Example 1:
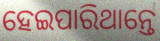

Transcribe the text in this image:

ହେଇପାରିଥାନ୍ତେ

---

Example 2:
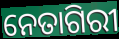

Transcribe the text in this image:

ନେତାଗିରୀ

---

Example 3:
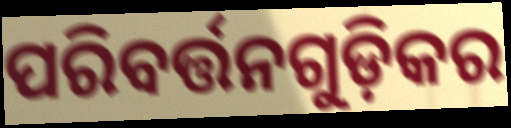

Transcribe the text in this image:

ପରିବର୍ତ୍ତନଗୁଡ଼ିକର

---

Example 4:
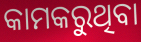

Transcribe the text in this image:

କାମକରୁଥିବା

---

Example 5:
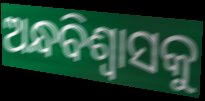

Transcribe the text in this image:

ଅନ୍ଧବିଶ୍ୱାସକୁ